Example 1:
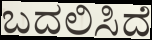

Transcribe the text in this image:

ಬದಲಿಸಿದೆ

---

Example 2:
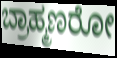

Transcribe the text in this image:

ಬ್ರಾಹ್ಮಣರೋ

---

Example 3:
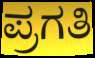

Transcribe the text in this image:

ಪ್ರಗತಿ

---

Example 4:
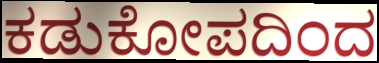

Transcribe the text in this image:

ಕಡುಕೋಪದಿಂದ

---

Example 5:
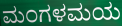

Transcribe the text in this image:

ಮಂಗಳಮಯ